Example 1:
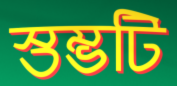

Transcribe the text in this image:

স্তম্ভটি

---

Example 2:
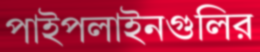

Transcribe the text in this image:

পাইপলাইনগুলির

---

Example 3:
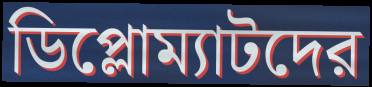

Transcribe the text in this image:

ডিপ্লোম্যাটদের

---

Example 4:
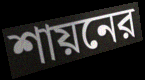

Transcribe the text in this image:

শায়নের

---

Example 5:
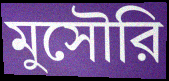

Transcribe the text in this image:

মুসৌরি